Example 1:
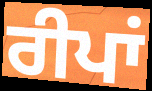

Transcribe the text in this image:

ਰੀਪਾਂ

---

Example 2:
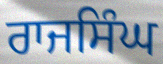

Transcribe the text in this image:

ਰਾਜਸਿੰਘ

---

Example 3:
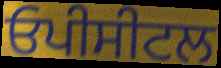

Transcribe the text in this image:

ਓਪੀਸੀਟਲ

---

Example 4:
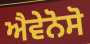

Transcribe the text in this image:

ਐਵੇਨੋਸੋ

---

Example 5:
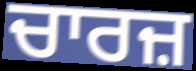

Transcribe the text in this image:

ਚਾਰਜ਼